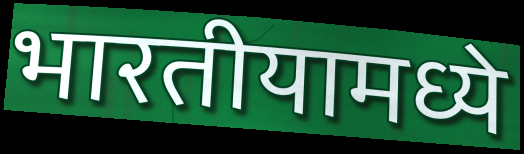
भारतीयामध्ये